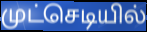
முட்செடியில்